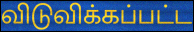
விடுவிக்கப்பட்ட